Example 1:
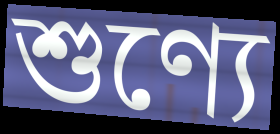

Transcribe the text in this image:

শুণ্যে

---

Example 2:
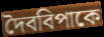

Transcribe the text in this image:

দৈববিপাকে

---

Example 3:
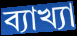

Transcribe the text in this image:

ব্য়াখ্যা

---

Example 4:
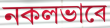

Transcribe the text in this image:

নকলভাবে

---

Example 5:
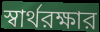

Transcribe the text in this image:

স্বার্থরক্ষার